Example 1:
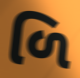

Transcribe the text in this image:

ળિ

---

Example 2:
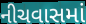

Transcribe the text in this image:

નીચવાસમાં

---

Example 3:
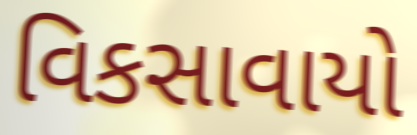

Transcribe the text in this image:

વિકસાવાયો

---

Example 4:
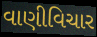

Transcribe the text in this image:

વાણીવિચાર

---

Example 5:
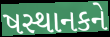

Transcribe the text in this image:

ષસ્થાનકને